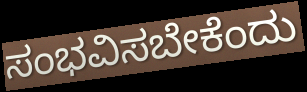
ಸಂಭವಿಸಬೇಕೆಂದು